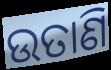
ଉତାଣି